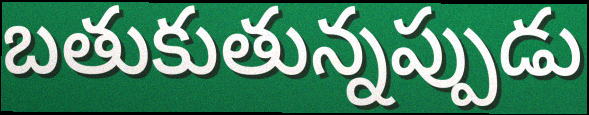
బతుకుతున్నప్పుడు